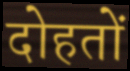
दोहतों